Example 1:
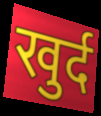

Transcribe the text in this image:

खुर्द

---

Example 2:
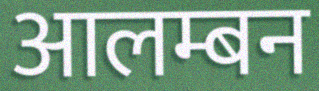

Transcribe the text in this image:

आलम्बन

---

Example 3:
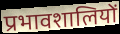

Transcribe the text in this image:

प्रभावशालियों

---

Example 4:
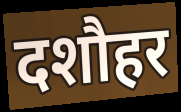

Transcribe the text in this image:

दशौहर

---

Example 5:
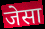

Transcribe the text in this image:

जेसा